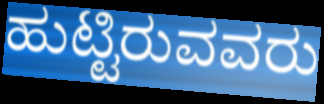
ಹುಟ್ಟಿರುವವರು